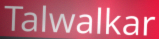
Talwalkar